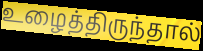
உழைத்திருந்தால்